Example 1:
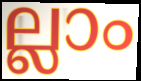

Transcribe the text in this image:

ല്ലാം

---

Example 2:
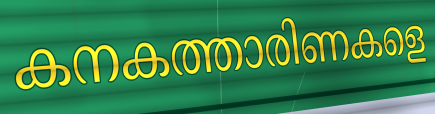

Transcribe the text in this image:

കനകത്താരിണകളെ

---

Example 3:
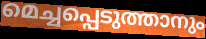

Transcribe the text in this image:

മെച്ചപ്പെടുത്താനും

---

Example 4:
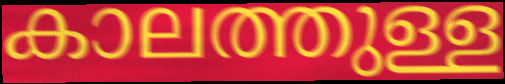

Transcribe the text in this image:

കാലത്തുള്ള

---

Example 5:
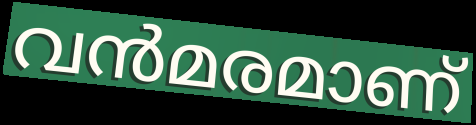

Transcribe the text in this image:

വൻമരമാണ്